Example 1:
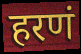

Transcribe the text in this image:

हरणं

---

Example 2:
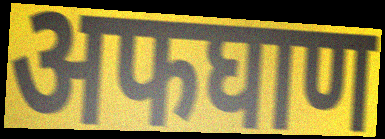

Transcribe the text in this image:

अफघाण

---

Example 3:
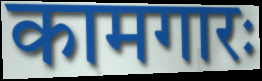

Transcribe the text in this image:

कामगारः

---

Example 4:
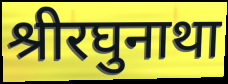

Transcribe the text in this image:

श्रीरघुनाथा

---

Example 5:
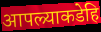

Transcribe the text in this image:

आपल्याकडेहि